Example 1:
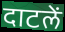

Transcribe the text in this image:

दाटलें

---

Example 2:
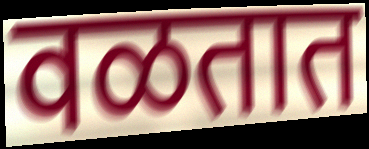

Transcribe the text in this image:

वळतात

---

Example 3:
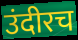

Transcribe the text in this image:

उंदीरच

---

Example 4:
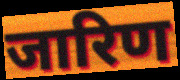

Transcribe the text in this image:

जारिण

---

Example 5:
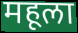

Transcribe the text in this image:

महूला